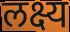
लक्ष्य